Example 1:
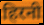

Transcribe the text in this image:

हिरनी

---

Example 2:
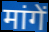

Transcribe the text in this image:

मांगें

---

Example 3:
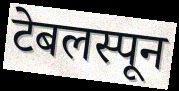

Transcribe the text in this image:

टेबलस्पून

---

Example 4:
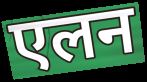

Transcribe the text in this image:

एलन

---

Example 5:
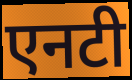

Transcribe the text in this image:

एनटी